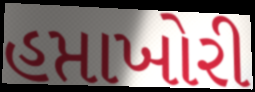
હપ્તાખોરી